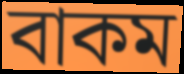
বাকম